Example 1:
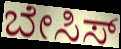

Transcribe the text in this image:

ಬೇಸಿಸ್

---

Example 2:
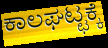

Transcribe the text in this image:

ಕಾಲಘಟ್ಟಕ್ಕೆ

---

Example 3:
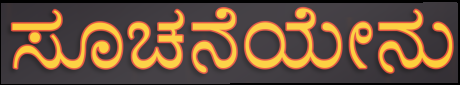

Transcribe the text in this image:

ಸೂಚನೆಯೇನು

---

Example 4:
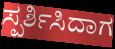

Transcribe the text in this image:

ಸ್ಪರ್ಶಿಸಿದಾಗ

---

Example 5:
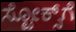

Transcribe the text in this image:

ಸ್ಟೋಕ್ಸ್‌ಗೆ